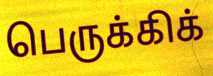
பெருக்கிக்